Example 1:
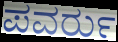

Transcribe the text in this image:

ಪವರ್ರು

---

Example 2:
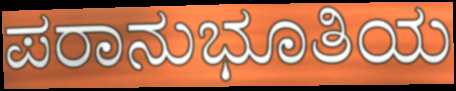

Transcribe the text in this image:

ಪರಾನುಭೂತಿಯ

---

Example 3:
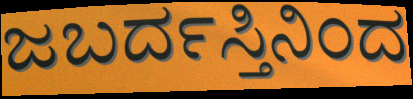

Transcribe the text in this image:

ಜಬರ್ದಸ್ತಿನಿಂದ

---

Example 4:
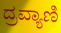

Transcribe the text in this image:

ದ್ರವ್ಯಾಣಿ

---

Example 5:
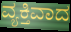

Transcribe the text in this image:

ವ್ಯಕ್ತಿವಾದ